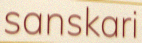
sanskari